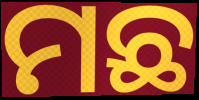
ମଛ